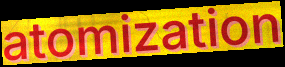
atomization